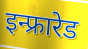
इन्फ्रारेड